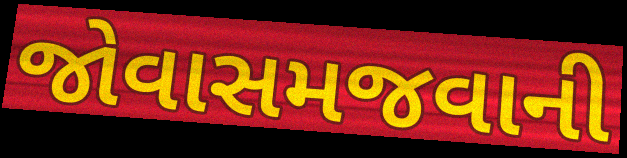
જોવાસમજવાની